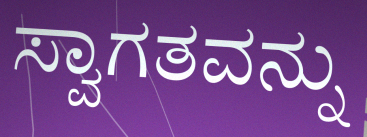
ಸ್ವಾಗತವನ್ನು